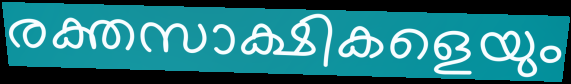
രക്തസാക്ഷികളെയും